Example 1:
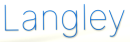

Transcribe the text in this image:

Langley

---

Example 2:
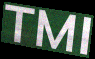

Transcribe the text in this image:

TMI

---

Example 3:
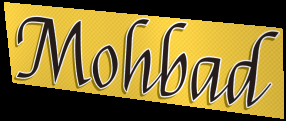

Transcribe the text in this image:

Mohbad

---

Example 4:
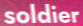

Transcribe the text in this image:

soldier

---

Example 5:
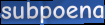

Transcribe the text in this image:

subpoena